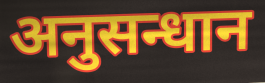
अनुसन्धान